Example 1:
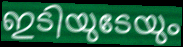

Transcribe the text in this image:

ഇടിയുടേയും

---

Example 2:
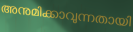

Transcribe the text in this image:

അനുമിക്കാവുന്നതായി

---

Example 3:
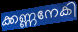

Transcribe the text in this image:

ക്കണ്ണനേകി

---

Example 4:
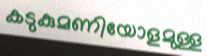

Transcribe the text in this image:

കടുകുമണിയോളമുള്ള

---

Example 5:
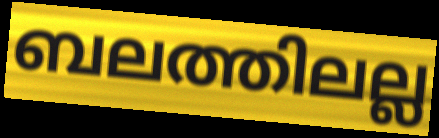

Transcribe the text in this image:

ബലത്തിലല്ല